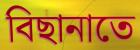
বিছানাতে